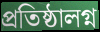
প্রতিষ্ঠালগ্ন